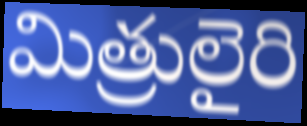
మిత్రులైరి